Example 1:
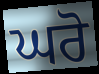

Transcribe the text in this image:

ਘਰੋ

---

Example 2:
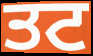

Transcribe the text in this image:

ਤਟ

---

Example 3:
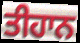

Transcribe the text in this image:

ਤੀਹਾਨ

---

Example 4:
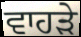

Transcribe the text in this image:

ਵਾਹੜੇ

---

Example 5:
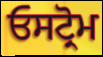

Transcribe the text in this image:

ਓਸਟ੍ਰੋਮ